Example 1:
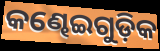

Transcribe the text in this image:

କଣ୍ଢେଇଗୁଡ଼ିକ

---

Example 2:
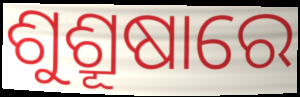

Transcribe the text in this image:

ଶୁଶ୍ରୂଷାରେ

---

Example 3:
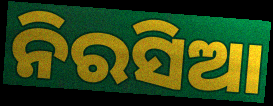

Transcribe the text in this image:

ନିରସିଆ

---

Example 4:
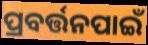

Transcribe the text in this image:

ପ୍ରବର୍ତ୍ତନପାଇଁ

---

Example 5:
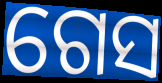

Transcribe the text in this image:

ଗେସ